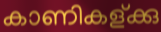
കാണികള്ക്കു